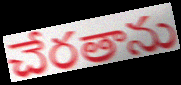
చేరతాను